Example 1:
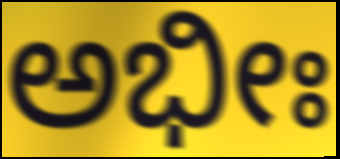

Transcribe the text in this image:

ಅಭೀಃ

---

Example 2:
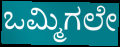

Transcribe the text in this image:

ಒಮ್ಮಿಗಲೇ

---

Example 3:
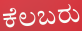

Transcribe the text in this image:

ಕೆಲಬರು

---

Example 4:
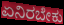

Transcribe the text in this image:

ಏನಿರಬೇಕು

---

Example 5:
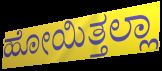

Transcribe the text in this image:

ಹೋಯಿತ್ತಲ್ಲಾ